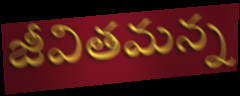
జీవితమన్న